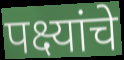
पक्ष्यांचे